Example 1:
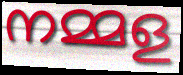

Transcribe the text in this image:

നമ്മള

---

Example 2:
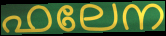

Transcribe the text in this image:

ഫലേന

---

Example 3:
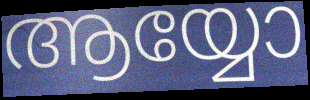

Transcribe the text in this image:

ആയ്യോ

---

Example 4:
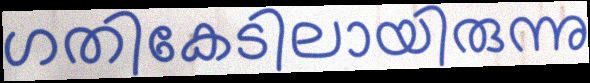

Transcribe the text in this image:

ഗതികേടിലായിരുന്നു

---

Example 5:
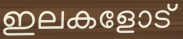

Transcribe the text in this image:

ഇലകളോട്